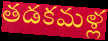
తడకమళ్ల